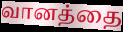
வானத்தை